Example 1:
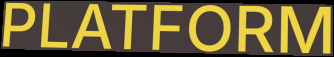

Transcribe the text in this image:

PLATFORM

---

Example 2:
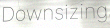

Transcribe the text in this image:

Downsizing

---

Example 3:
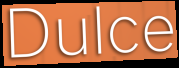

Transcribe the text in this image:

Dulce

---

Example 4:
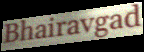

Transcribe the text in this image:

Bhairavgad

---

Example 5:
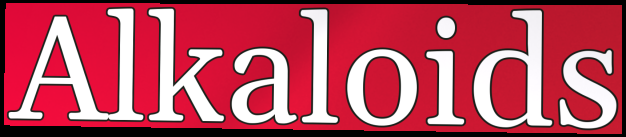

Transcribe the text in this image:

Alkaloids